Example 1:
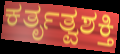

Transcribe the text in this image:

ಕರ್ತೃತ್ವಶಕ್ತಿ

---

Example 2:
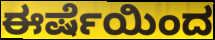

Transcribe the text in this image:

ಈರ್ಷೆಯಿಂದ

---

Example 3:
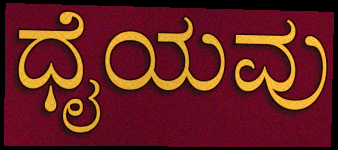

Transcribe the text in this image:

ಧೈಯವು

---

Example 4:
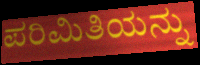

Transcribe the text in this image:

ಪರಿಮಿತಿಯನ್ನು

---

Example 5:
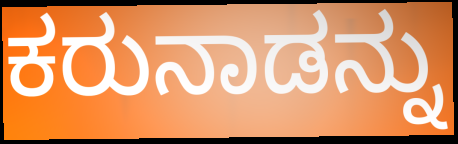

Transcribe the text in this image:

ಕರುನಾಡನ್ನು